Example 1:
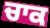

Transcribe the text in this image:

ਚਾਕ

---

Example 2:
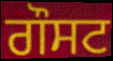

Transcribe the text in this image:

ਗੌਸਟ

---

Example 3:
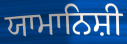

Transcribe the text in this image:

ਯਾਮਾਨਿਸ਼ੀ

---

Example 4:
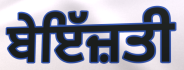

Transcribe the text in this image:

ਬੇਇੱਜ਼ਤੀ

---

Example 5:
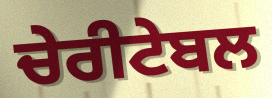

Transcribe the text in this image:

ਚੇਰੀਟੇਬਲ